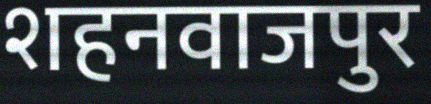
शहनवाजपुर